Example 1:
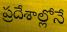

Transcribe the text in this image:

ప్రదేశాల్లోనే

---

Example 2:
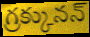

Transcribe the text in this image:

గ్రక్కునన్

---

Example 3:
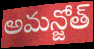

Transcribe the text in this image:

అమన్జోత్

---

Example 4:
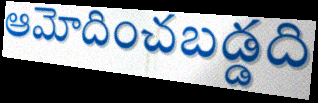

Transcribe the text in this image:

ఆమోదించబడ్డది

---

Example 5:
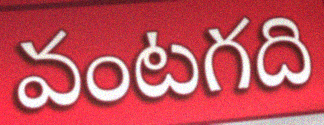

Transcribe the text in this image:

వంటగది